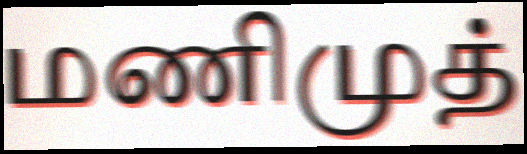
மணிமுத்